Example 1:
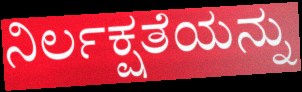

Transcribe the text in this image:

ನಿರ್ಲಕ್ಷತೆಯನ್ನು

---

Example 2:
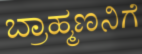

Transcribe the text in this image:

ಬ್ರಾಹ್ಮಣನಿಗೆ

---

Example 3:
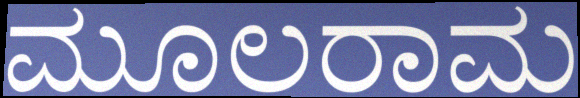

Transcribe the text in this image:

ಮೂಲರಾಮ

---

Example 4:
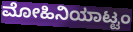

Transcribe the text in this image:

ಮೋಹಿನಿಯಾಟ್ಟಂ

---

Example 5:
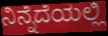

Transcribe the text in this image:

ನಿನ್ನೆದೆಯಲ್ಲಿ